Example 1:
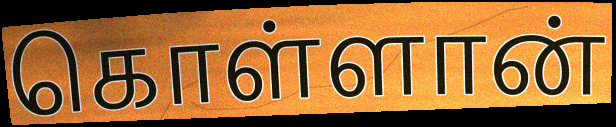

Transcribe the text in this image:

கொள்ளான்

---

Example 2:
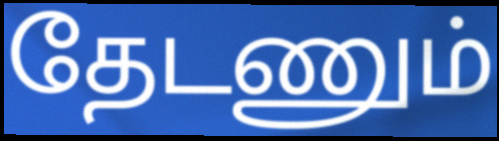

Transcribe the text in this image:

தேடணும்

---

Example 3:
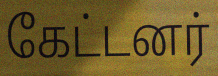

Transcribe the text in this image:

கேட்டனர்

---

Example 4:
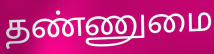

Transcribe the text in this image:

தண்ணுமை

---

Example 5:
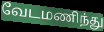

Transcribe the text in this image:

வேடமணிந்து